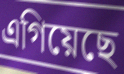
এগিয়েছে